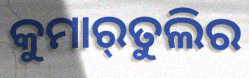
କୁମାର୍‌ତୁଲିର